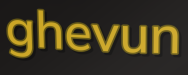
ghevun